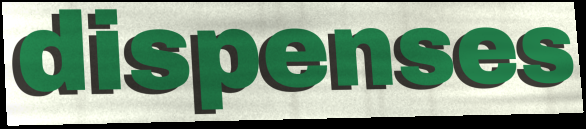
dispenses